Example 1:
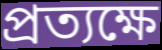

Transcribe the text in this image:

প্রত্যক্ষে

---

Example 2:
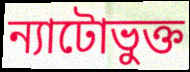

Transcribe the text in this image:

ন্যাটোভুক্ত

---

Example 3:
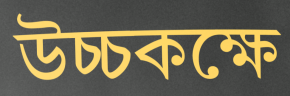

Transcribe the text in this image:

উচ্চকক্ষে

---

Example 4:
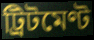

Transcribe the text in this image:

ট্রিটমেণ্ট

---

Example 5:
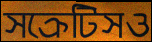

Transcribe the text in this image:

সক্রেটিসও